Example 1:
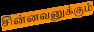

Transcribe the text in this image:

சின்னவனுக்கும்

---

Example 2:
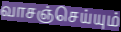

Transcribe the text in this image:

வாசஞ்செய்யும்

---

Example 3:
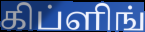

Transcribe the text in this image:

கிப்ளிங்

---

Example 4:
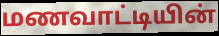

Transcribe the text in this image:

மணவாட்டியின்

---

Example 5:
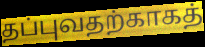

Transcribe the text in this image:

தப்புவதற்காகத்